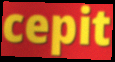
cepit